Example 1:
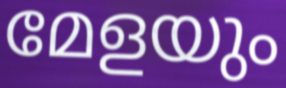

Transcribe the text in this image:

മേളയും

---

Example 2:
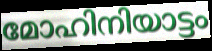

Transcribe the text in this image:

മോഹിനിയാട്ടം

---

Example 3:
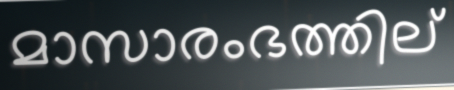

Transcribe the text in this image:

മാസാരംഭത്തില്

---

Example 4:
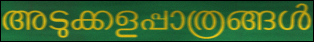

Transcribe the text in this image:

അടുക്കളപ്പാത്രങ്ങൾ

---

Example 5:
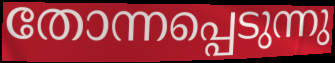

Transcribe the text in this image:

തോന്നപ്പെടുന്നു